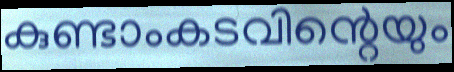
കുണ്ടാംകടവിന്റെയും